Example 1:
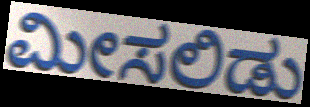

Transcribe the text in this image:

ಮೀಸಲಿಡು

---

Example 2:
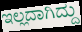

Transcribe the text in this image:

ಇಲ್ಲದಾಗಿದ್ದು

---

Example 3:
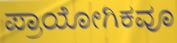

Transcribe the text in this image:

ಪ್ರಾಯೋಗಿಕವೂ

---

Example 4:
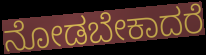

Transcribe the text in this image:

ನೋಡಬೇಕಾದರೆ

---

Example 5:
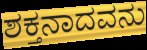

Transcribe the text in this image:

ಶಕ್ತನಾದವನು